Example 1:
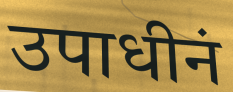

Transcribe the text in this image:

उपाधीनं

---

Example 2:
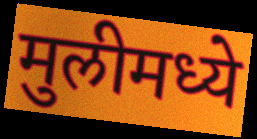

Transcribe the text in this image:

मुलीमध्ये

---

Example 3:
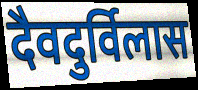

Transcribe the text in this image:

दैवदुर्विलास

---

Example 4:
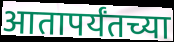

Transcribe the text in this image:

आतापर्यंतच्या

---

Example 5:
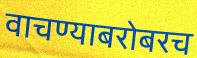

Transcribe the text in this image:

वाचण्याबरोबरच